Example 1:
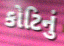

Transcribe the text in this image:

કોટિનું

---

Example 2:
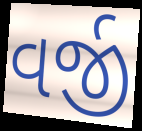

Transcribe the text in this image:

વર્જી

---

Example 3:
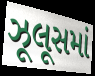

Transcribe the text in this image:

ઝૂલૂસમાં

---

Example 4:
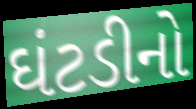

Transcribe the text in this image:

ઘંટડીનો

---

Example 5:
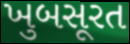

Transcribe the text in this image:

ખુબસૂરત